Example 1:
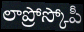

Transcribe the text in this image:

లాప్రోస్కోపీ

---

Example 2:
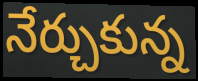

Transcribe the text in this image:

నేర్చుకున్న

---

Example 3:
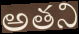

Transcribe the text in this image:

అతని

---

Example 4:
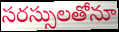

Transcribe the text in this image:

సరస్సులతోనూ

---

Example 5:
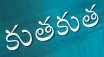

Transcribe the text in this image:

కుతకుత